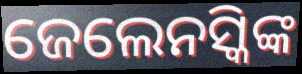
ଜେଲେନସ୍କିଙ୍କ